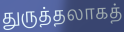
துருத்தலாகத்